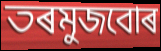
তৰমুজবোৰ